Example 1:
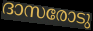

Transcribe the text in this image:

ദാസരോടു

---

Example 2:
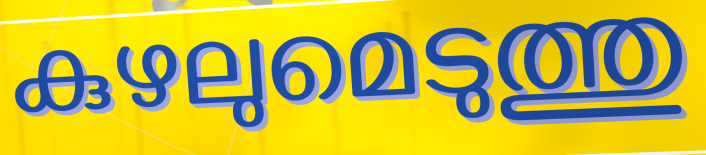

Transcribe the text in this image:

കുഴലുമെടുത്തു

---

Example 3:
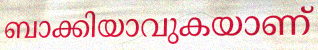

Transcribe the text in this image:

ബാക്കിയാവുകയാണ്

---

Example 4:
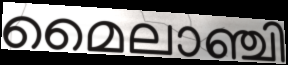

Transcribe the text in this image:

മൈലാഞ്ചി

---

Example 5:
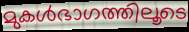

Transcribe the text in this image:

മുകൾഭാഗത്തിലൂടെ